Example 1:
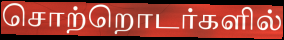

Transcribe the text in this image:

சொற்றொடர்களில்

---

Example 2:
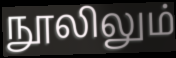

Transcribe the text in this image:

நூலிலும்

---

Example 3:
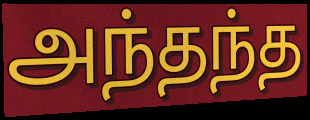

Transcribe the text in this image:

அந்தந்த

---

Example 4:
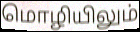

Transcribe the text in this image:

மொழியிலும்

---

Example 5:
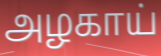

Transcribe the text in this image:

அழகாய்